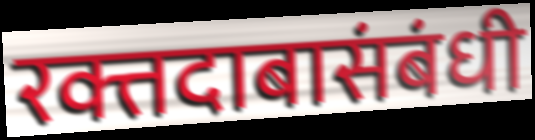
रक्तदाबासंबंधी